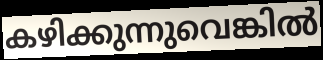
കഴിക്കുന്നുവെങ്കിൽ